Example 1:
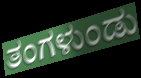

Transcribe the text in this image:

ತಂಗಳುಂಡು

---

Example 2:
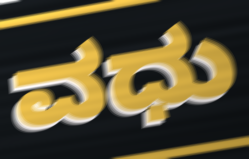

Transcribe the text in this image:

ವಧು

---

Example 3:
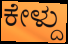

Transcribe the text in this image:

ಕೇಳ್ದು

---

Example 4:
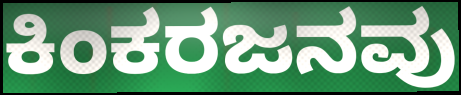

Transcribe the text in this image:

ಕಿಂಕರಜನವು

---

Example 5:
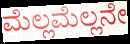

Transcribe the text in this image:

ಮೆಲ್ಲಮೆಲ್ಲನೇ